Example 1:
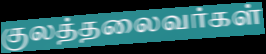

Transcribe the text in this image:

குலத்தலைவர்கள்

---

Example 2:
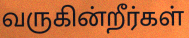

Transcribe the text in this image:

வருகின்றீர்கள்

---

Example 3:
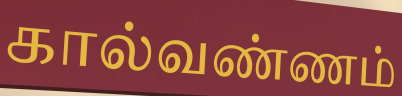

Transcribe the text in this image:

கால்வண்ணம்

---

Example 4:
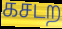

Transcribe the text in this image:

கசடற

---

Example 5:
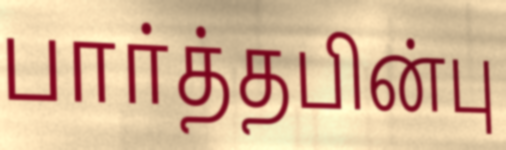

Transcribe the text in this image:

பார்த்தபின்பு